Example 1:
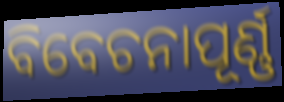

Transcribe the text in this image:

ବିବେଚନାପୂର୍ଣ୍ଣ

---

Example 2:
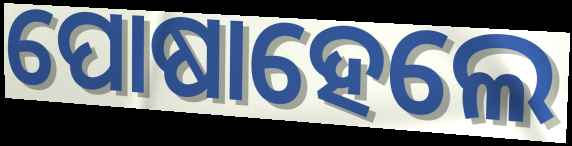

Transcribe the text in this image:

ପୋଷାହେଲେ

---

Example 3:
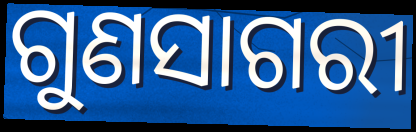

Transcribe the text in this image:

ଗୁଣସାଗରୀ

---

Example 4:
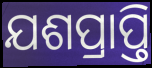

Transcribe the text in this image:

ଯଶପ୍ରାପ୍ତି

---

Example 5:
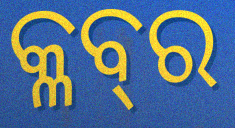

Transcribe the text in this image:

କ୍ଳବ୍‍ର